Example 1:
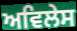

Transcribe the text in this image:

ਅਵਿਲੇਸ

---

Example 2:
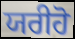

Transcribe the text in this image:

ਯਰੀਹੋ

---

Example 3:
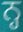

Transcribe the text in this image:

ਨ੍ਹ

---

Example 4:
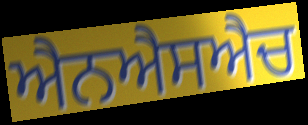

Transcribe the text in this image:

ਐਨਐਸਐਚ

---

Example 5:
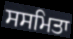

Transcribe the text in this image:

ਸਸਮਿਤਾ